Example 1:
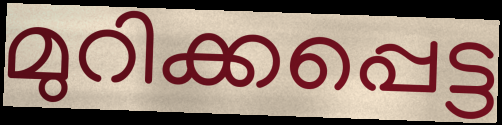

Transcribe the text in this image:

മുറിക്കപ്പെട്ട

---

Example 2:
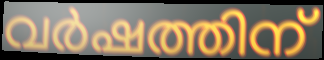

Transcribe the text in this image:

വർഷത്തിന്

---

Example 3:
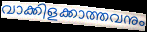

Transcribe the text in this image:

വാക്കിളക്കാത്തവനും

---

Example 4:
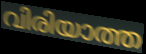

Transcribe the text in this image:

വിരിയാത്ത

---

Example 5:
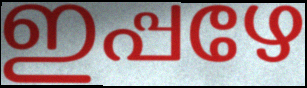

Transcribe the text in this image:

ഇപ്പഴേ